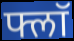
फ्लॉ